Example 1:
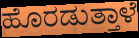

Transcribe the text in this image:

ಹೊರಡುತ್ತಾಳೆ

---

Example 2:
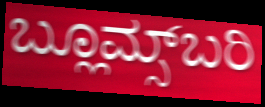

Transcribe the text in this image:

ಬ್ಲೂಮ್ಸ್‌ಬರಿ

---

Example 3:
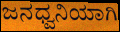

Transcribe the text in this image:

ಜನಧ್ವನಿಯಾಗಿ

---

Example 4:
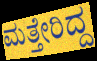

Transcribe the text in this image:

ಮತ್ತೇರಿದ್ದ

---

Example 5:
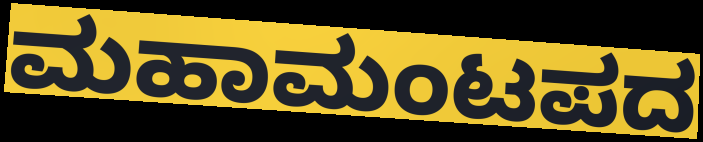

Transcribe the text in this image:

ಮಹಾಮಂಟಪದ